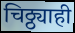
चिठ्ठ्याही